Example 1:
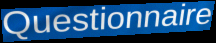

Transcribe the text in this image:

Questionnaire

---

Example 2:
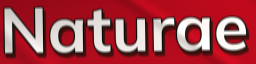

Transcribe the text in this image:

Naturae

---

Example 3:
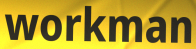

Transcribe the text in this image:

workman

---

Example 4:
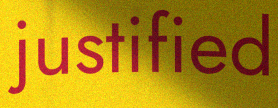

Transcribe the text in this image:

justified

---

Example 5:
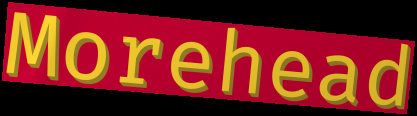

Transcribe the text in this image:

Morehead